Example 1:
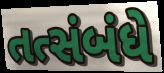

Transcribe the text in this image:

તત્સંબંધે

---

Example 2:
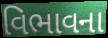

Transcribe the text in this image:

વિભાવના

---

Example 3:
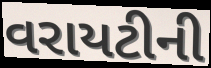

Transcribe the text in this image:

વરાયટીની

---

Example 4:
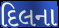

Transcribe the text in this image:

દિલના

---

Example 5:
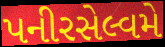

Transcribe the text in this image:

પનીરસેલ્વમે